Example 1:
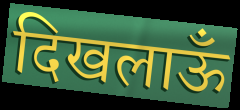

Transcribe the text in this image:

दिखलाऊँ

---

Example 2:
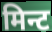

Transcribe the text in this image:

मिन्ट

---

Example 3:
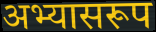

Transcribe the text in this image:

अभ्यासरूप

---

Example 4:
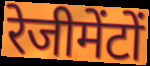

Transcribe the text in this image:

रेजीमेंटों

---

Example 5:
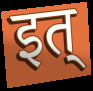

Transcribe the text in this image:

इत्